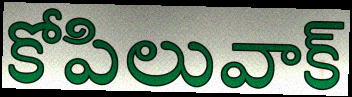
కోపిలువాక్